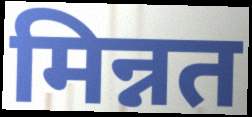
मिन्नत